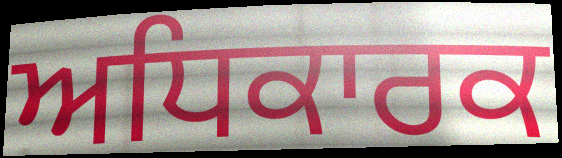
ਅਧਿਕਾਰਕ